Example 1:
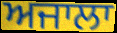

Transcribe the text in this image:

ਅਜਾਲਾ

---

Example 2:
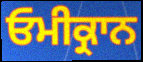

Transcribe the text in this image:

ਓਮੀਕ੍ਰਾਨ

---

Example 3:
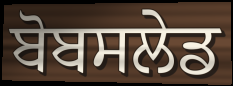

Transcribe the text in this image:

ਬੋਬਸਲੇਡ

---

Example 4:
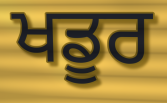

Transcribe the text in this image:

ਖਡੂਰ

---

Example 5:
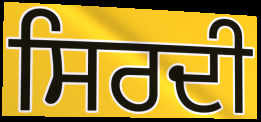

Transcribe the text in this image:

ਸਿਰਦੀ